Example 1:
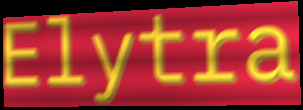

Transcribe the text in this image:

Elytra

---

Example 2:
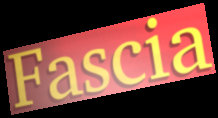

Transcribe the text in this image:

Fascia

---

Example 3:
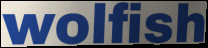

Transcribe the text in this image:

wolfish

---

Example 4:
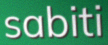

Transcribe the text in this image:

sabiti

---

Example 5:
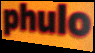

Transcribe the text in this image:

phulo